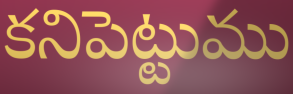
కనిపెట్టుము